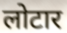
लोटार